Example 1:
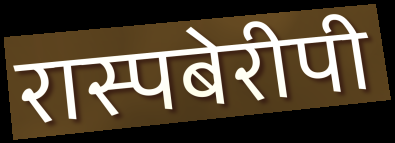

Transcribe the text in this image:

रास्पबेरीपी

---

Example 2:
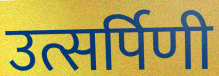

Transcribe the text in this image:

उत्सर्पिणी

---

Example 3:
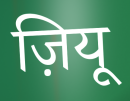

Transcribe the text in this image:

ज़ियू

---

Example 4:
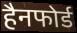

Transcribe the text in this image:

हैनफोर्ड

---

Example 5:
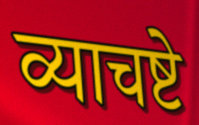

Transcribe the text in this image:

व्याचष्टे